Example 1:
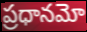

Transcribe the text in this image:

ప్రధానమో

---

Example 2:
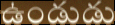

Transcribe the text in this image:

ఉండుడు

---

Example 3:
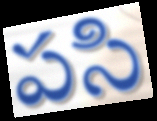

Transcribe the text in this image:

పసి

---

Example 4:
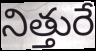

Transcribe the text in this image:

నిత్తురే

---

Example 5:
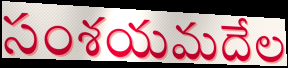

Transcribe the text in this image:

సంశయమదేల